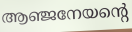
ആഞ്ജനേയന്റെ